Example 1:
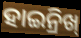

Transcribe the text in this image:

ହାଇନ୍ରିଖ୍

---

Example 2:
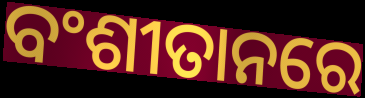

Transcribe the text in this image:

ବଂଶୀତାନରେ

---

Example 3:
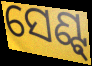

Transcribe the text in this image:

ସେଣ୍ଟ୍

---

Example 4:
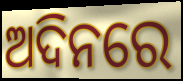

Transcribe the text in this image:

ଅଦିନରେ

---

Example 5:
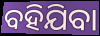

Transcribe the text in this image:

ବହିଯିବା